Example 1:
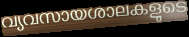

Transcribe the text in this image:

വ്യവസായശാലകളുടെ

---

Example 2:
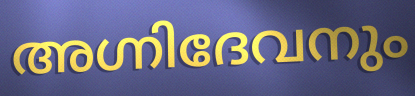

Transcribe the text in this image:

അഗ്നിദേവനും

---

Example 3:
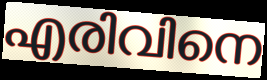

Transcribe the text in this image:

എരിവിനെ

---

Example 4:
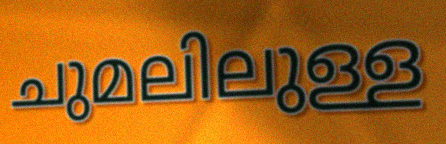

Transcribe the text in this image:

ചുമലിലുള്ള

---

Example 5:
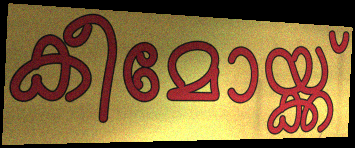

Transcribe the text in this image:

കീമോയ്ക്ക്